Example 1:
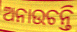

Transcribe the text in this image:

ଅନାଉଚନ୍ତି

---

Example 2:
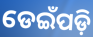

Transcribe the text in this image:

ଡେଇଁପଡ଼ି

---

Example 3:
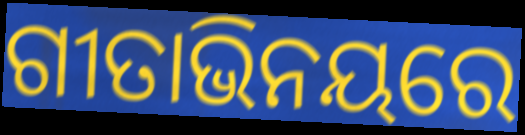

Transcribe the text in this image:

ଗୀତାଭିନୟରେ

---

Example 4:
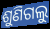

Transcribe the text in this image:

ଶୁଣିଗଲୁ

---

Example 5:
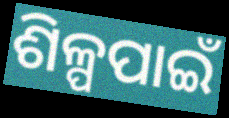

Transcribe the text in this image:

ଶିଳ୍ପପାଇଁ